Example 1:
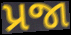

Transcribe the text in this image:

પ્રજા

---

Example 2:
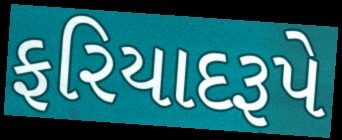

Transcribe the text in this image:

ફરિયાદરૂપે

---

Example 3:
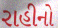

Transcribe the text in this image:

રાહીનો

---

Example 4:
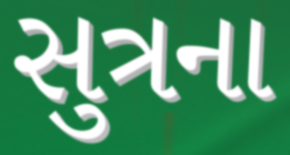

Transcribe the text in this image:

સુત્રના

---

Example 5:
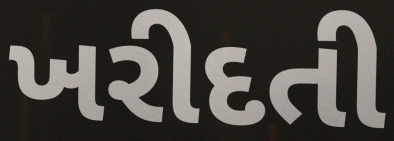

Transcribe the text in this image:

ખરીદતી